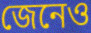
জেনেও